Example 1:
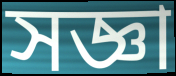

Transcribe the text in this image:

সজ্ঞা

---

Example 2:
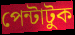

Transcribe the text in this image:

পেন্টাটুক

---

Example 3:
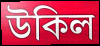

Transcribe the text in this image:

উকিল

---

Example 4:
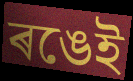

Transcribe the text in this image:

ৰঙেই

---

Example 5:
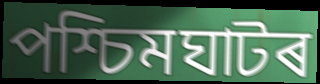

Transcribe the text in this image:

পশ্চিমঘাটৰ